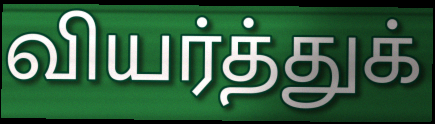
வியர்த்துக்